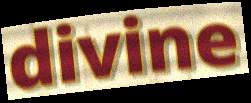
divine